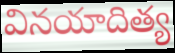
వినయాదిత్య